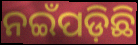
ନଇଁପଡ଼ିଛି